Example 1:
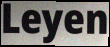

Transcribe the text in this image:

Leyen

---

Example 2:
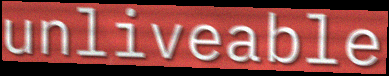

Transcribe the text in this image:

unliveable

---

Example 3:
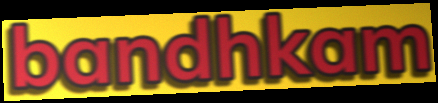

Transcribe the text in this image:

bandhkam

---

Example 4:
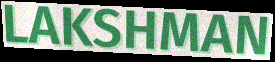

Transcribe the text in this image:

LAKSHMAN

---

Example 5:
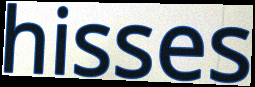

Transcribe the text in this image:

hisses